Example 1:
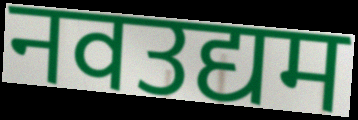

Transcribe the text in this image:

नवउद्यम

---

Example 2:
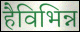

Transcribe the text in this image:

हैविभिन्न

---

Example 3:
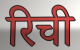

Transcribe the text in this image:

रिची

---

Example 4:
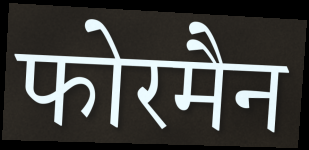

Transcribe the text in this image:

फोरमैन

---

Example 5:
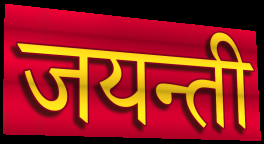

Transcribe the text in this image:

जयन्ती